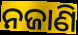
ନଜାଣି